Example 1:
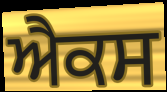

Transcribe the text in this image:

ਐਕਸ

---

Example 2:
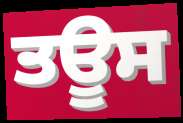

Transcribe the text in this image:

ਤਊਸ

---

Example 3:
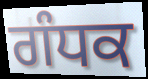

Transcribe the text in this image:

ਗੰਧਕ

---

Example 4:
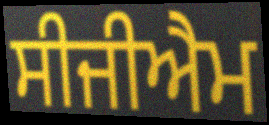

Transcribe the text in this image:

ਸੀਜੀਐਮ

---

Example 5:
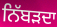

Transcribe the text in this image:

ਨਿੱਬੜਦਾ